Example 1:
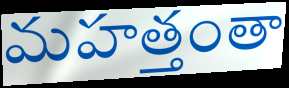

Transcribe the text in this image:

మహత్తంతా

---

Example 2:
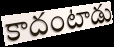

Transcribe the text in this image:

కాదంటాడు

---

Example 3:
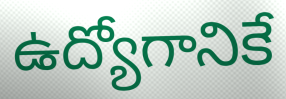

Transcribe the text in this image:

ఉద్యోగానికే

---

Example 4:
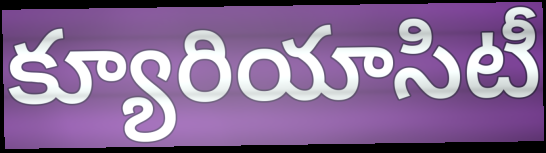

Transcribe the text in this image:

క్యూరియాసిటీ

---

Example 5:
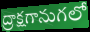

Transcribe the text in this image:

ద్రాక్షగానుగలో